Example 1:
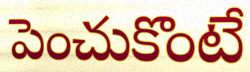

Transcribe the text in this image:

పెంచుకొంటే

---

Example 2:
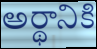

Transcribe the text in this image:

అర్థానికి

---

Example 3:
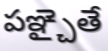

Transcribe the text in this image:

పఞ్చైతే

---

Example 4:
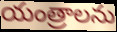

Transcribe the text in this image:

యంత్రాలను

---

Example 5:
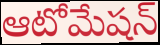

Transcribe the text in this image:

ఆటోమేషన్